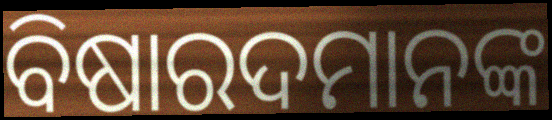
ବିଷାରଦମାନଙ୍କ